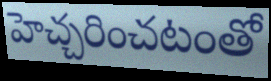
హెచ్చరించటంతో